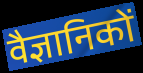
वैज्ञानिकों